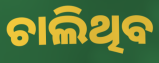
ଚାଲିଥିବ